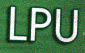
LPU